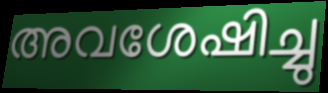
അവശേഷിച്ചു